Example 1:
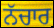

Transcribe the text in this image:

ਨੱਚਾਰ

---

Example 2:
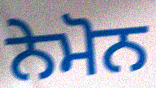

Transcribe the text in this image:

ਨੇਮੋਨ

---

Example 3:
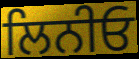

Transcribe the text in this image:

ਲਿਨੀਓ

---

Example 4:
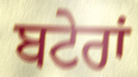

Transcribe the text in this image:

ਬਟੇਰਾਂ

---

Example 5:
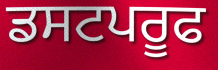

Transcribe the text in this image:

ਡਸਟਪਰੂਫ